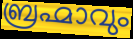
ബ്രഹ്മാവും